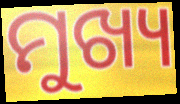
ମୁଖ୍ୟ